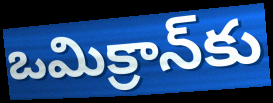
ఒమిక్రాన్‌కు